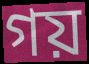
গয়